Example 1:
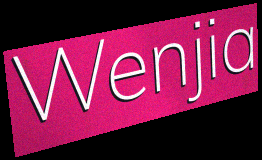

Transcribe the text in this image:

Wenjia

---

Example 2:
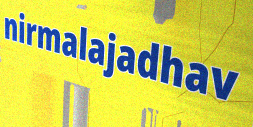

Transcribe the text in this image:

nirmalajadhav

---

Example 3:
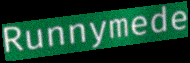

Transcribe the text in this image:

Runnymede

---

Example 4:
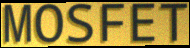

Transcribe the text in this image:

MOSFET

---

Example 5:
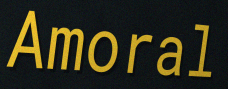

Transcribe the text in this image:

Amoral